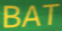
BAT